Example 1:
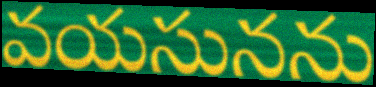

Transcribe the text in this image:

వయసునను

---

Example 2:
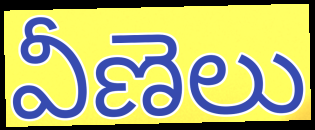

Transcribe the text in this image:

వీణెలు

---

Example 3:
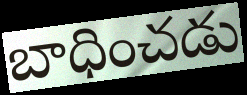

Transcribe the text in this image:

బాధించడు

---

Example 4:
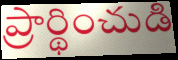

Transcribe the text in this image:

ప్రార్థించుడి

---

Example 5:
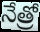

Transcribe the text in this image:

నేత్రో